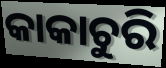
କାକାଚୁରି